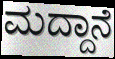
ಮದ್ದಾನೆ